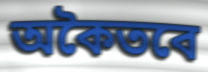
অকৈতবে